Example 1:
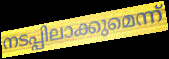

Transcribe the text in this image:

നടപ്പിലാക്കുമെന്ന്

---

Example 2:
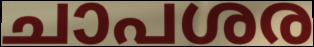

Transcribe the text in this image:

ചാപശര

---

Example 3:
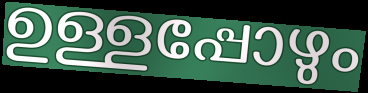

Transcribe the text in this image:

ഉള്ളപ്പോഴും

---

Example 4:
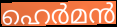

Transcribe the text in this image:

ഹെർമൻ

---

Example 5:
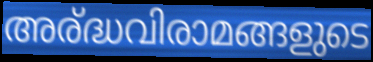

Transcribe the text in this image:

അര്ദ്ധവിരാമങ്ങളുടെ